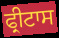
ਫ੍ਰੀਟਾਸ